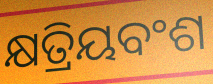
କ୍ଷତ୍ରିୟବଂଶ